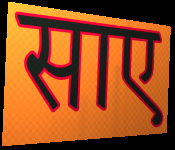
साए